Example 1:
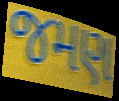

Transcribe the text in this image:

જમણ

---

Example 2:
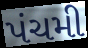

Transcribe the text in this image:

પંચમી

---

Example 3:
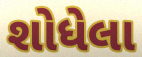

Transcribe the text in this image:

શોધેલા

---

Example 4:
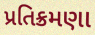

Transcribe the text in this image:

પ્રતિક્રમણા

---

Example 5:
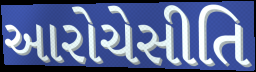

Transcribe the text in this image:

આરોચેસીતિ